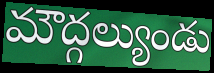
మౌద్గల్యుండు